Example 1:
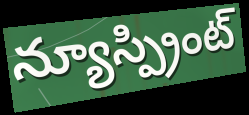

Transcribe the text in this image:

న్యూస్ప్రింట్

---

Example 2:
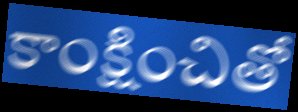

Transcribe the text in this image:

కాంక్షించితో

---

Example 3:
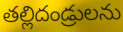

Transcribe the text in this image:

తల్లిదండ్రులను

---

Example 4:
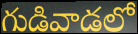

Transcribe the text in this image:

గుడివాడలో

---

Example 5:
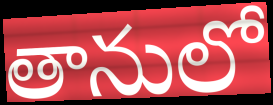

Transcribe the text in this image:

తానులో